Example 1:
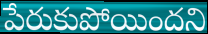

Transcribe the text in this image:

పేరుకుపోయిందని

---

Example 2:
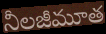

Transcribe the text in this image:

నీలజీమూత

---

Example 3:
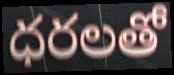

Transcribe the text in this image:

ధరలతో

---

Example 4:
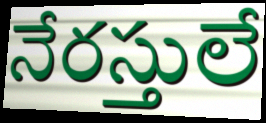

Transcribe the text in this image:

నేరస్తులే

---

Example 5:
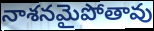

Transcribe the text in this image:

నాశనమైపోతావు